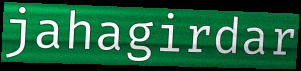
jahagirdar